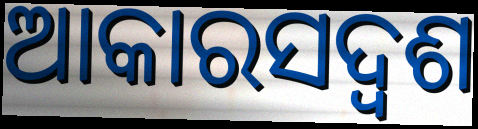
ଆକାରସଦ୍ୱଶ